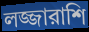
লজ্জারাশি